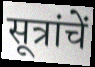
सूत्रांचें